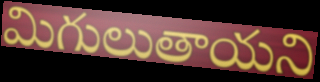
మిగులుతాయని